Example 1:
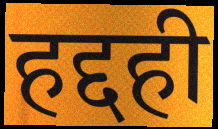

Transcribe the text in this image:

हद्दही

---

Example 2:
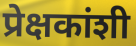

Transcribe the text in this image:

प्रेक्षकांशी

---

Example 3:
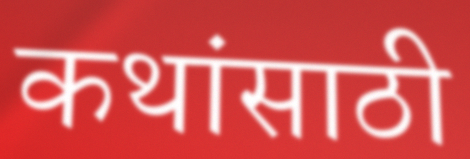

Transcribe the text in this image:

कथांसाठी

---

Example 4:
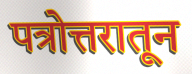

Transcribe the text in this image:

पत्रोत्तरातून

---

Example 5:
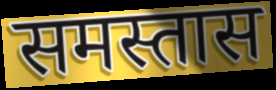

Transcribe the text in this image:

समस्तास